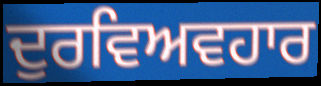
ਦੁਰਵਿਅਵਹਾਰ